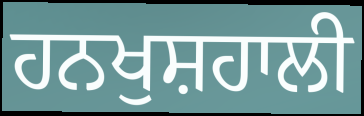
ਹਨਖੁਸ਼ਹਾਲੀ